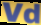
Vd